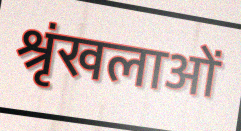
श्रृंखलाओं